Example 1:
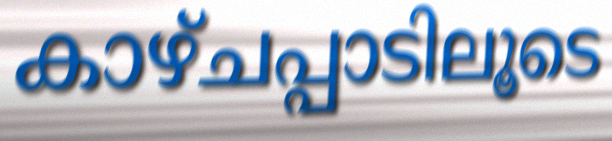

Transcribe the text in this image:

കാഴ്ചപ്പാടിലൂടെ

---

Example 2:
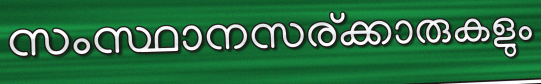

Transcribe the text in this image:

സംസ്ഥാനസര്ക്കാരുകളും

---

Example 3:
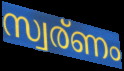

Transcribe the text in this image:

സ്വര്ണം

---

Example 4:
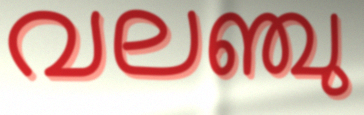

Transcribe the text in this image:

വലഞ്ചു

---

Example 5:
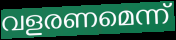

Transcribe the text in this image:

വളരണമെന്ന്